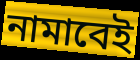
নামাবেই